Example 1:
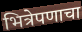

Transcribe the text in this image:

भित्रेपणाचा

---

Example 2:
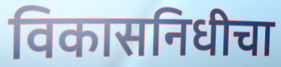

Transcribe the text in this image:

विकासनिधीचा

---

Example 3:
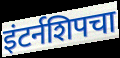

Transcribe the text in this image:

इंटर्नशिपचा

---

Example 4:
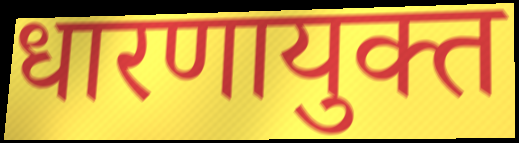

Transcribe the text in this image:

धारणायुक्त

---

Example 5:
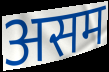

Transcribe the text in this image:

असम